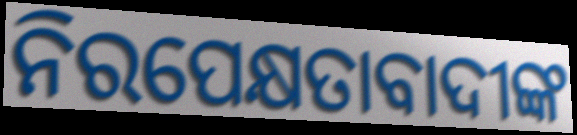
ନିରପେକ୍ଷତାବାଦୀଙ୍କ